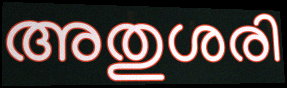
അതുശരി